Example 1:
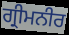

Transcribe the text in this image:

ਗ੍ਰੀਮਨੀਰ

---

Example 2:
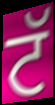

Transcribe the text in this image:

ਟੱ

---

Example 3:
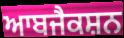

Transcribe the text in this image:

ਆਬਜੈਕਸ਼ਨ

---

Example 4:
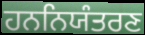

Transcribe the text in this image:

ਹਨਨਿਯੰਤਰਣ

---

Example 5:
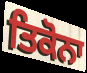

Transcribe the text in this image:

ਤਿਕੋਨਾ